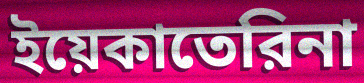
ইয়েকাতেরিনা